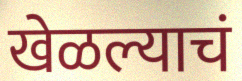
खेळल्याचं